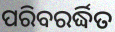
ପରିବରର୍ଦ୍ଧିତ